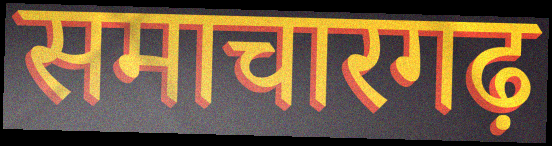
समाचारगढ़